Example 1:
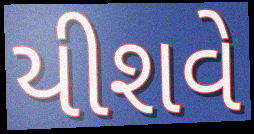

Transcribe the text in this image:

યીશવે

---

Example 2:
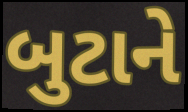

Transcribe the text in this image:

બુટાને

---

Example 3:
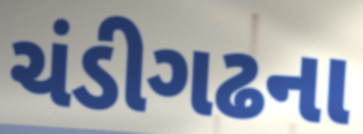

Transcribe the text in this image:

ચંડીગઢના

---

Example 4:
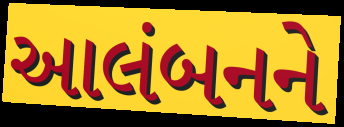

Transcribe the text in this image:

આલંબનને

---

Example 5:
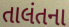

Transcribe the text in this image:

તાલંતના